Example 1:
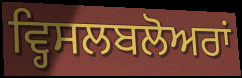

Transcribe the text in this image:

ਵ੍ਹਿਸਲਬਲੋਅਰਾਂ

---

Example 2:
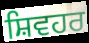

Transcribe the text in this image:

ਸ਼ਿਵਹਰ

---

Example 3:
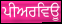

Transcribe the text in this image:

ਪੀਅਰਵਿਊ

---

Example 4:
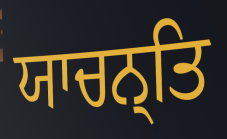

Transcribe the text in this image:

ਯਾਚਨ੍ਤਿ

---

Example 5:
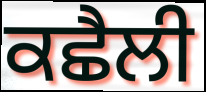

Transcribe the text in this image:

ਕਛੈਲੀ